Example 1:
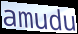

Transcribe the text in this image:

amudu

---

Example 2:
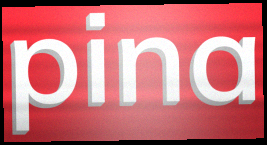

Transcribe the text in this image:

pina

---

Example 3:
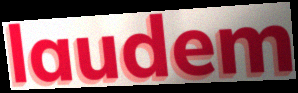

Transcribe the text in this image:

laudem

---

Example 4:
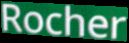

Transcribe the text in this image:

Rocher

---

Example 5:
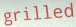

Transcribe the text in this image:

grilled